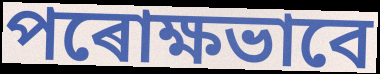
পৰোক্ষভাবে